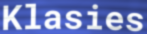
Klasies